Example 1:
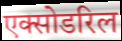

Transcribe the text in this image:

एक्सोडरिल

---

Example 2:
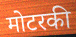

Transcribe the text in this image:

मोटरकी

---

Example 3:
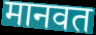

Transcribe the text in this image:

मानवत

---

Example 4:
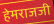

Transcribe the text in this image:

हेमराजजी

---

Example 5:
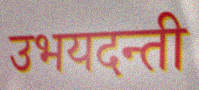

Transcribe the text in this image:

उभयदन्ती